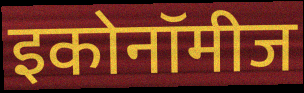
इकोनॉमीज